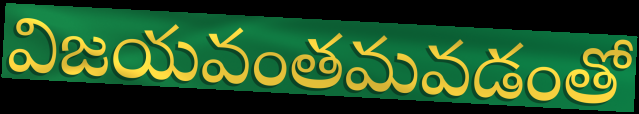
విజయవంతమవడంతో